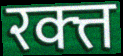
रक्त्त